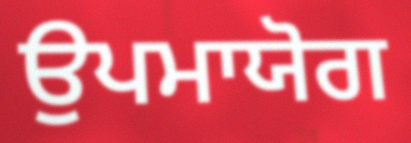
ਉਪਮਾਯੋਗ